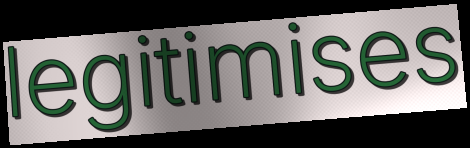
legitimises